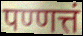
पण्णत्तं